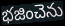
భజించెను